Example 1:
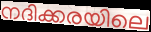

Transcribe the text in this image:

നദിക്കരയിലെ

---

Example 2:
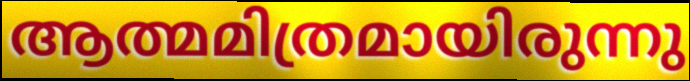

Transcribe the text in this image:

ആത്മമിത്രമായിരുന്നു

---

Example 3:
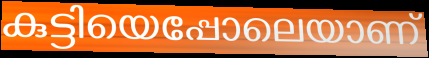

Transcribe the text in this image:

കുട്ടിയെപ്പോലെയാണ്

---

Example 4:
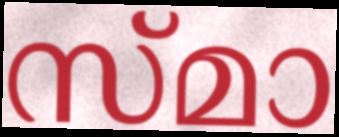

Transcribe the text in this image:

സ്മാ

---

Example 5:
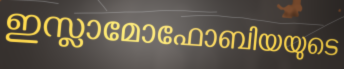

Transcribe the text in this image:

ഇസ്ലാമോഫോബിയയുടെ